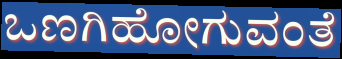
ಒಣಗಿಹೋಗುವಂತೆ